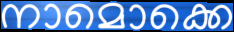
നാമൊക്കെ